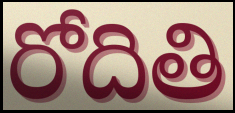
రోదితి